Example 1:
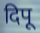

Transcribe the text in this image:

दिपू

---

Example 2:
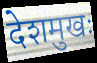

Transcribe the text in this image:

देशमुखः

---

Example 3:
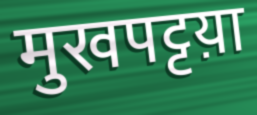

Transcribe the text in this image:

मुखपट्टय़ा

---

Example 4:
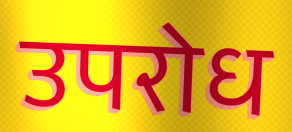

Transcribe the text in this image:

उपरोध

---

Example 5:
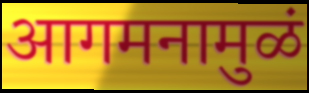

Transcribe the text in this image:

आगमनामुळं